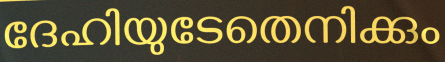
ദേഹിയുടേതെനിക്കും